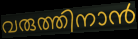
വരുത്തിനാൻ